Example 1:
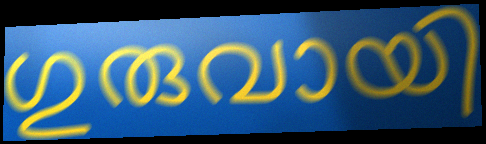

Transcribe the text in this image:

ഗുരുവായി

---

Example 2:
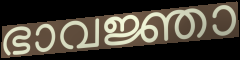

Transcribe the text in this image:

ഭാവജ്ഞാ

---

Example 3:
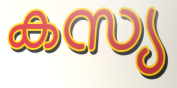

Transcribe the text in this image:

കസ്യ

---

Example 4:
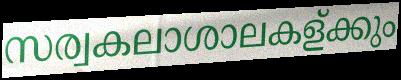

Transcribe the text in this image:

സര്വകലാശാലകള്ക്കും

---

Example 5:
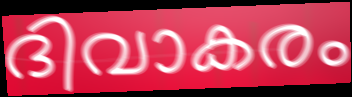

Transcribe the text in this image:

ദിവാകരം